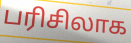
பரிசிலாக